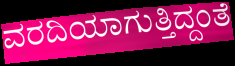
ವರದಿಯಾಗುತ್ತಿದ್ದಂತೆ